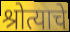
श्रोत्याचे